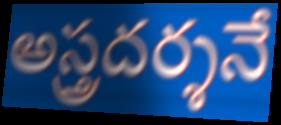
అస్త్రదర్శనే